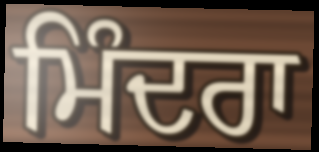
ਮਿੰਦਰਾ